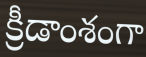
క్రీడాంశంగా